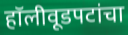
हॉलीवूडपटांचा